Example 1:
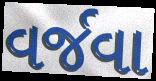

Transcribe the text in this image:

વર્જવા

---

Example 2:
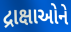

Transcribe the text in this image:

દ્રાક્ષાઓને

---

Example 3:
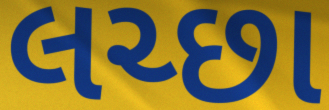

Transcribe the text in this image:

લચ્છા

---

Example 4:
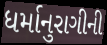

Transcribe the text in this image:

ધર્માનુરાગીની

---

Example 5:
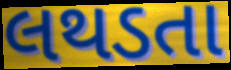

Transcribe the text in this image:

લથડતા